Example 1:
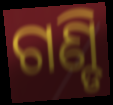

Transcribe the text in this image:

ଗଣ୍ଡି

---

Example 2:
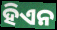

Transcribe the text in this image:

ହିଏନ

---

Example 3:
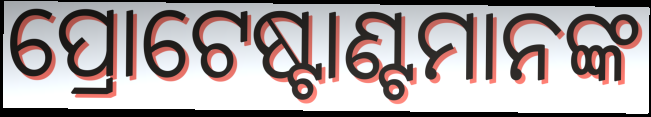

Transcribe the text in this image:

ପ୍ରୋଟେଷ୍ଟାଣ୍ଟମାନଙ୍କ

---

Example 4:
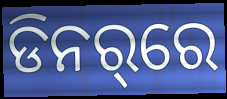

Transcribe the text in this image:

ଡିନର୍‌ରେ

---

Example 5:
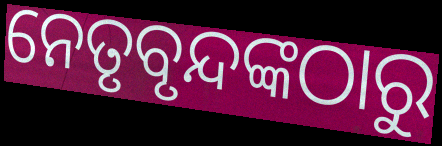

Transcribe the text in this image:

ନେତୃବୃନ୍ଦଙ୍କଠାରୁ